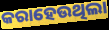
କରାହେଉଥିଲା